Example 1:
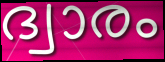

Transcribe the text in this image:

ദ്വാരം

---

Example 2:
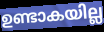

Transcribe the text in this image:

ഉണ്ടാകയില്ല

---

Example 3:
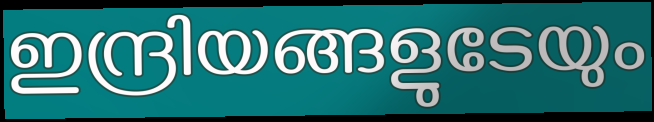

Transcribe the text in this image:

ഇന്ദ്രിയങ്ങളുടേയും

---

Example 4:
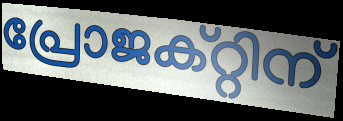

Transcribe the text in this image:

പ്രോജക്റ്റിന്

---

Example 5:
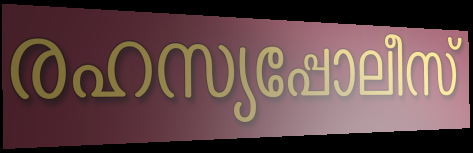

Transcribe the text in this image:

രഹസ്യപ്പോലീസ്